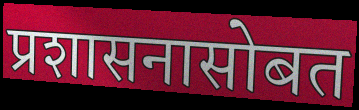
प्रशासनासोबत